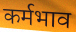
कर्मभाव